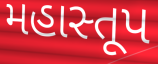
મહાસ્તૂપ